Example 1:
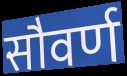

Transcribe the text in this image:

सौवर्ण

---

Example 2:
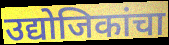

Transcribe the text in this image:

उद्योजिकांचा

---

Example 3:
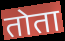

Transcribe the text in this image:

तोता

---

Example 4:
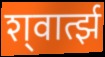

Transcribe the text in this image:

श्वार्त्झ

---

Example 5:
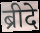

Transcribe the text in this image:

ब्रीदे